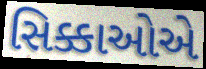
સિક્કાઓએ